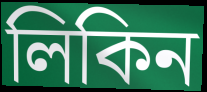
লিকিন